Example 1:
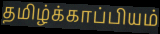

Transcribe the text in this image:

தமிழ்க்காப்பியம்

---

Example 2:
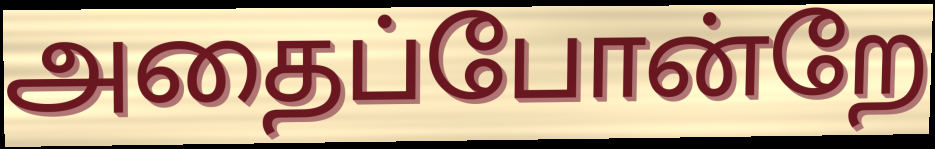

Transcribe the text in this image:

அதைப்போன்றே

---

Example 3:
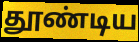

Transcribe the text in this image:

தூண்டிய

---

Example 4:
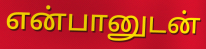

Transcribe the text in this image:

என்பானுடன்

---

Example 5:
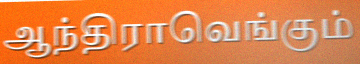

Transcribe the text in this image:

ஆந்திராவெங்கும்